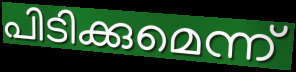
പിടിക്കുമെന്ന്